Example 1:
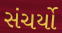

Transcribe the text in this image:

સંચર્યો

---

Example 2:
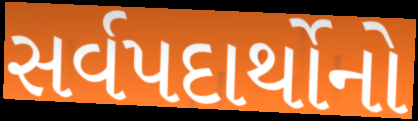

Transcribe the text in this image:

સર્વપદાર્થોનો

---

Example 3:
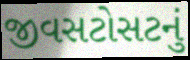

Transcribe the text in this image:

જીવસટોસટનું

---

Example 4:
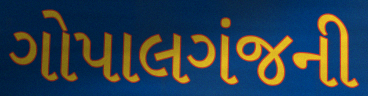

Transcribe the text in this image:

ગોપાલગંજની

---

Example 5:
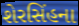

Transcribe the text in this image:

શેરસિંહના